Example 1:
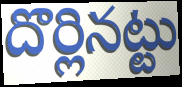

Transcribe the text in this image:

దొర్లినట్టు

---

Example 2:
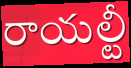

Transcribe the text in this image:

రాయల్టీ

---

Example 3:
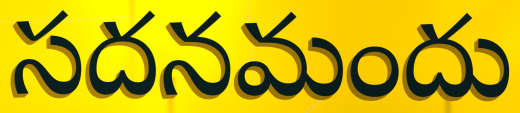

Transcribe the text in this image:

సదనమందు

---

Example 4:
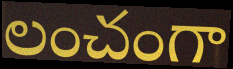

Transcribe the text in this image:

లంచంగా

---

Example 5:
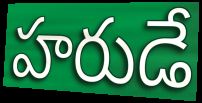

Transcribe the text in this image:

హరుడే